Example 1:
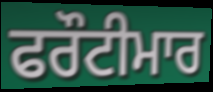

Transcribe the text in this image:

ਫਰੌਟੀਮਾਰ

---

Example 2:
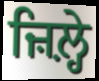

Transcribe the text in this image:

ਜ਼ਿਲ਼੍ਹੇ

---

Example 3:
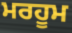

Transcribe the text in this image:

ਮਰਹੂਮ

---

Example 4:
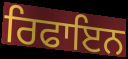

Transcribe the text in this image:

ਰਿਫਾਇਨ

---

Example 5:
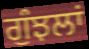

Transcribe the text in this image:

ਗੁੰਝਲਾਂ